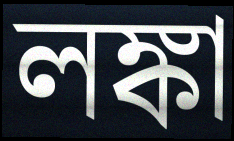
লঙ্কা